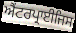
ਐਂਟਰਪ੍ਰਾਈਜਿਸ